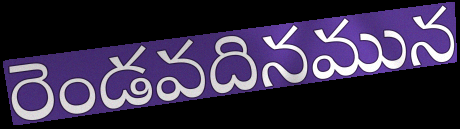
రెండవదినమున